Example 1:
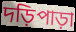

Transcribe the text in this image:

দড়িপাড়া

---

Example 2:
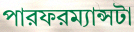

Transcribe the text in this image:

পারফরম্যান্সটা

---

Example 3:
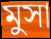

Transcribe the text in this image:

মুসা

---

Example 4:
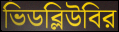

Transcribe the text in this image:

ভিডব্লিউবির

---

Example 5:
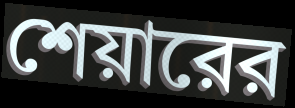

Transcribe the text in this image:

শেয়ারের